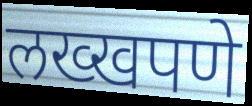
लख्खपणे